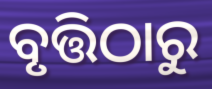
ବୃତ୍ତିଠାରୁ